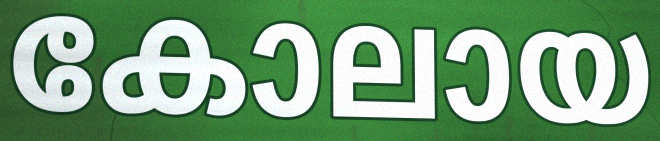
കോലായ